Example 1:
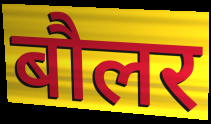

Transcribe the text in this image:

बौलर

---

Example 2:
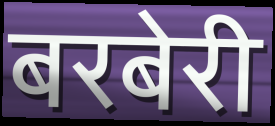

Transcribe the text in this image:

बरबेरी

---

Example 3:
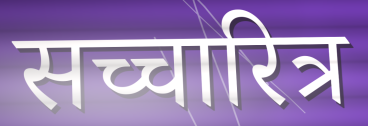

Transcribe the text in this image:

सच्चारित्र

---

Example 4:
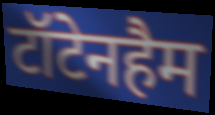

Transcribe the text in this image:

टॉटेनहैम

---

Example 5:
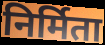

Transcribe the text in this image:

निर्मिता